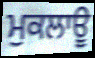
ਮੁਕਲਾਊ